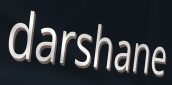
darshane